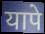
यापे